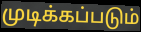
முடிக்கப்படும்